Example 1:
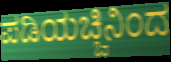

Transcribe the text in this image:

ಪಡಿಯಚ್ಚಿನಿಂದ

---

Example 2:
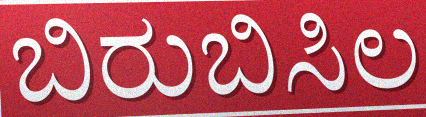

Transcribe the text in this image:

ಬಿರುಬಿಸಿಲ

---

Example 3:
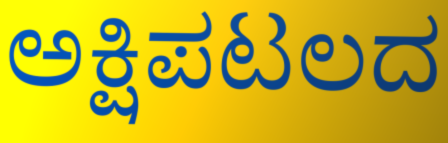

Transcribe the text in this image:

ಅಕ್ಷಿಪಟಲದ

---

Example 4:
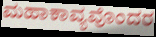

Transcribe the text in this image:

ಮಹಾಕಾವ್ಯವೊಂದರ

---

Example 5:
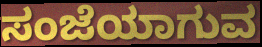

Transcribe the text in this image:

ಸಂಜೆಯಾಗುವ